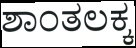
ಶಾಂತಲಕ್ಕ